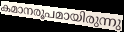
കമാനരൂപമായിരുന്നു